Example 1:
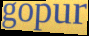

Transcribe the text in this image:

gopur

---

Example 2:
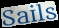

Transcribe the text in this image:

Sails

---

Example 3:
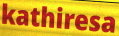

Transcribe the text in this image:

kathiresa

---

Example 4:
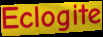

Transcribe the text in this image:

Eclogite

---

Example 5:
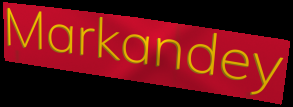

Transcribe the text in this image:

Markandey